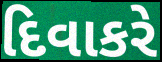
દિવાકરે